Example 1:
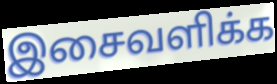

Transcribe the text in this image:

இசைவளிக்க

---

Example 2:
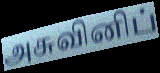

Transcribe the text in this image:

அசுவினிப்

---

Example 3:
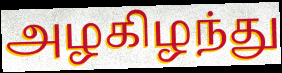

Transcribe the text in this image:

அழகிழந்து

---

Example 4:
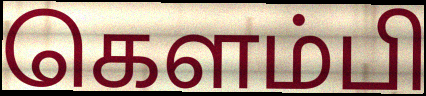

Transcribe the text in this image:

கெளம்பி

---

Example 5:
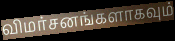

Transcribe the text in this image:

விமர்சனங்களாகவும்